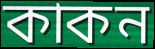
কাকন